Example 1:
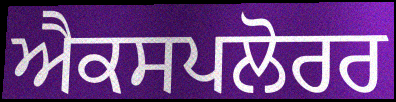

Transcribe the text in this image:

ਐਕਸਪਲੋਰਰ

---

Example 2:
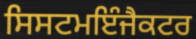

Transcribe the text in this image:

ਸਿਸਟਮਇੰਜੈਕਟਰ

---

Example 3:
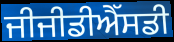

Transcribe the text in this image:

ਜੀਜੀਡੀਐੱਸਡੀ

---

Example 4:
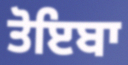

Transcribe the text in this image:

ਤੋਇਬਾ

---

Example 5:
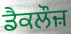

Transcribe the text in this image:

ਡੈਕਲੌਜ਼